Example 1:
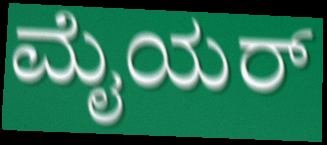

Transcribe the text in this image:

ಮೈಯರ್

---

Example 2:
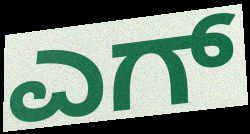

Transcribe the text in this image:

ಎಗ್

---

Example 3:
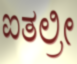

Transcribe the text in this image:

ಐತಲ್ರೀ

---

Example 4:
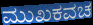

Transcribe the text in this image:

ಮುಖಕವಚ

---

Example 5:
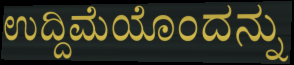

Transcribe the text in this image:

ಉದ್ದಿಮೆಯೊಂದನ್ನು